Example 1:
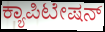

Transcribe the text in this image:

ಕ್ಯಾಪಿಟೇಷನ್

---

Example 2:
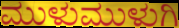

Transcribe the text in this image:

ಮುಳುಮುಳುಗಿ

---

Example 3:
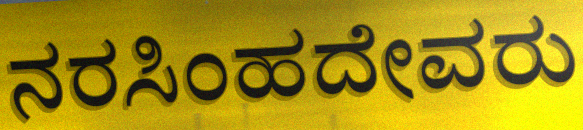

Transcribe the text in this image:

ನರಸಿಂಹದೇವರು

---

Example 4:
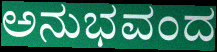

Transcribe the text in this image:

ಅನುಭವಂದ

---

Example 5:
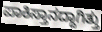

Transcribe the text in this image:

ಪಾಕಿಸ್ತಾನದ್ದಾಗಿತ್ತು